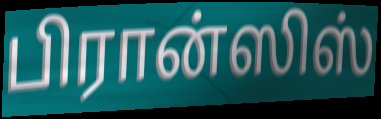
பிரான்ஸிஸ்